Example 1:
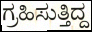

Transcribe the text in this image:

ಗ್ರಹಿಸುತ್ತಿದ್ದ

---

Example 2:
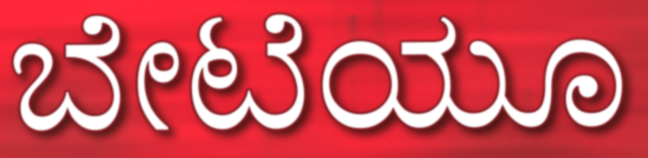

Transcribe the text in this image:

ಬೇಟೆಯೂ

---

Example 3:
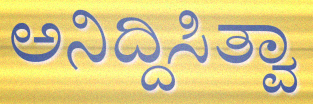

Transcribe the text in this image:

ಅನಿದ್ದಿಸಿತ್ವಾ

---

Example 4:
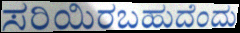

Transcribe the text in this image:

ಸರಿಯಿರಬಹುದೆಂದು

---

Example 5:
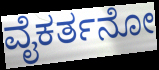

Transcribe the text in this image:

ವೈಕರ್ತನೋ